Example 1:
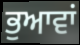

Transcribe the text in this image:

ਭੁਆਵਾਂ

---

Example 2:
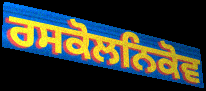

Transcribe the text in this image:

ਰਸਕੋਲਨਿਕੋਵ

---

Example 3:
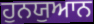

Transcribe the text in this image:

ਹੁਨਯੁਆਨ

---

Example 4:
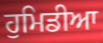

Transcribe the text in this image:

ਹੁਮਿਡੀਆ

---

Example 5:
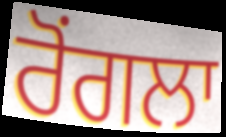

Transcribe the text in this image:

ਰੋਂਗਲਾ